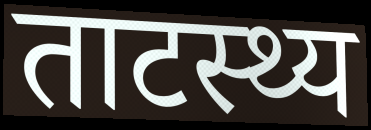
ताटस्थ्य